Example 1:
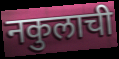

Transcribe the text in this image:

नकुलाची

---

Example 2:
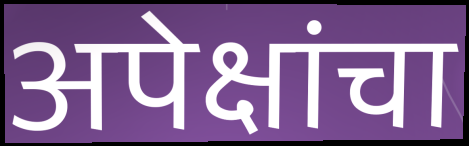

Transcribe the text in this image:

अपेक्षांचा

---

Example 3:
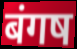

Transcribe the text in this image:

बंगष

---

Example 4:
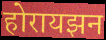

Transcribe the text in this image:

होरायझन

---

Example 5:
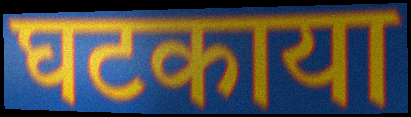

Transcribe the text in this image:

घटकाया